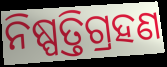
ନିଷ୍ପତ୍ତିଗ୍ରହଣ